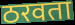
ठरवता